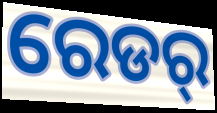
ରେଡର୍